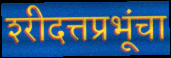
श्रीदत्तप्रभूंचा